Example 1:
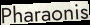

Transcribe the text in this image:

Pharaonis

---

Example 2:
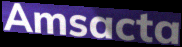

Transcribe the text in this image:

Amsacta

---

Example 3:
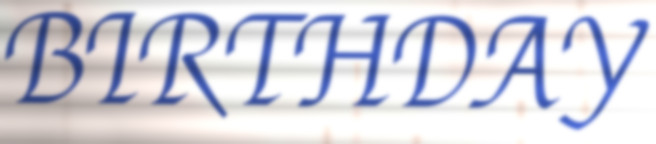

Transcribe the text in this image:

BIRTHDAY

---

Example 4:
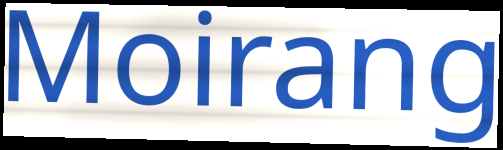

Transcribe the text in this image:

Moirang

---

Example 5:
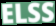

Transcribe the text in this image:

ELSS